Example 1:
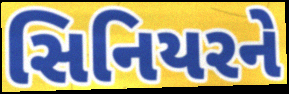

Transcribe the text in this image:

સિનિયરને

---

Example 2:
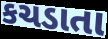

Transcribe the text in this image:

કચડાતા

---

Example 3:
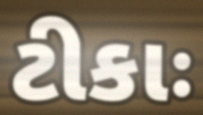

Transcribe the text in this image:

ટીકાઃ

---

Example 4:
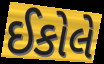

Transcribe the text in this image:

ઈકોલે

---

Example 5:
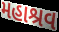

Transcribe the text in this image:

મહાશ્રવ